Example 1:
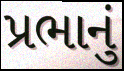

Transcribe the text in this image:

પ્રભાનું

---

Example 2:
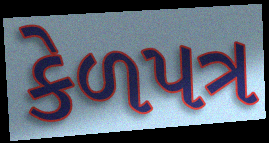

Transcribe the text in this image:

કેળપત્ર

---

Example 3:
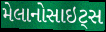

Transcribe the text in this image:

મેલાનોસાઇટ્સ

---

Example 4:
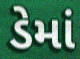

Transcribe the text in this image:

ડેમાં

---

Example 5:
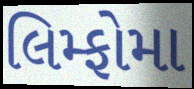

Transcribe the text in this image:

લિમ્ફોમા